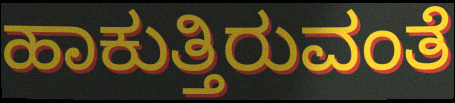
ಹಾಕುತ್ತಿರುವಂತೆ